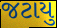
જટાયુ